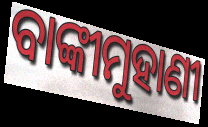
ବାଙ୍କୀମୁହାଣୀ